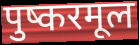
पुष्करमूल